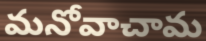
మనోవాచామ